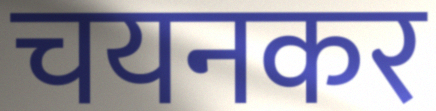
चयनकर